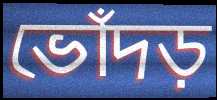
ভোঁদড়